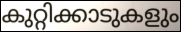
കുറ്റിക്കാടുകളും